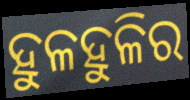
ହୁଳହୁଳିର